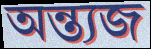
অন্ত্যজ